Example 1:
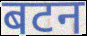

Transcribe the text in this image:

बटन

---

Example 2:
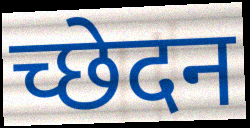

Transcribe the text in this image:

च्छेदन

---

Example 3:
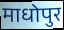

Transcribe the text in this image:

माधोपुर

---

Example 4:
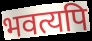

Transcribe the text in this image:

भवत्यपि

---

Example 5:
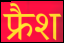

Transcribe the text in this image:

फ्रैश